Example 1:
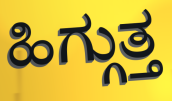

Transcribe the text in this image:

ಹಿಗ್ಗುತ್ತ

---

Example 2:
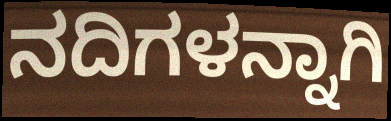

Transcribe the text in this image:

ನದಿಗಳನ್ನಾಗಿ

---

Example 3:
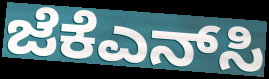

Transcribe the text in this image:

ಜೆಕೆಎನ್‌ಸಿ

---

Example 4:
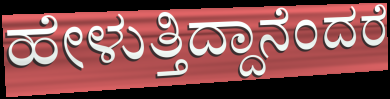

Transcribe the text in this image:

ಹೇಳುತ್ತಿದ್ದಾನೆಂದರೆ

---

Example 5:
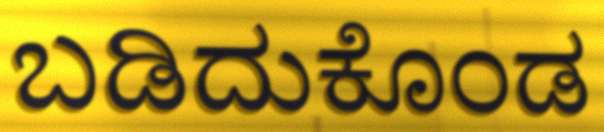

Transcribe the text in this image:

ಬಡಿದುಕೊಂಡ